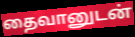
தைவானுடன்